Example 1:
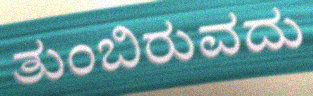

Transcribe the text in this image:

ತುಂಬಿರುವದು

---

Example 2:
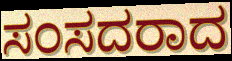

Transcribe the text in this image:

ಸಂಸದರಾದ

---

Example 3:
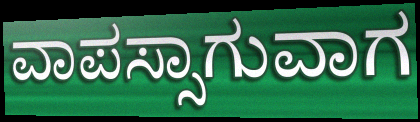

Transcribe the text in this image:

ವಾಪಸ್ಸಾಗುವಾಗ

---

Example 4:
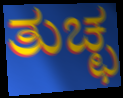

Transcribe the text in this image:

ತುಚ್ಛ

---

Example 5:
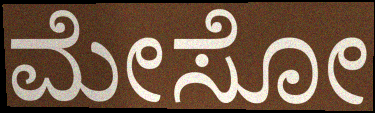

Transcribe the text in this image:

ಮೇಸೋ